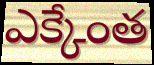
ఎక్కేంత